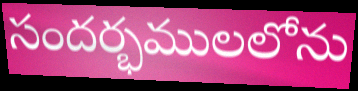
సందర్భములలోను